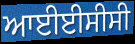
ਆਈਈਸੀਸੀ